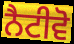
ਨੈਟੀਵੋ